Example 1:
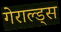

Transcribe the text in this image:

गेराल्ड्स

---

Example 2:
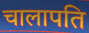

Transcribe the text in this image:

चालापति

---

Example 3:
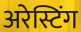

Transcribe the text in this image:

अरेस्टिंग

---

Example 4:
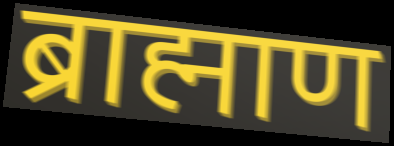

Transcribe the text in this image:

ब्राह्माण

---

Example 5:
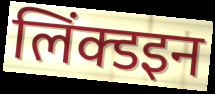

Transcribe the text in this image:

लिंक्‍डइन